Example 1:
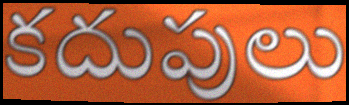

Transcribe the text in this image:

కదుపులు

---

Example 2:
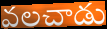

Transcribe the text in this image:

వలచాడు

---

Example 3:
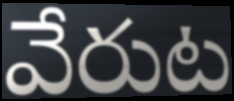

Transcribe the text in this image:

వేరుట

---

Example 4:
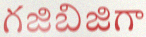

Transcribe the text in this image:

గజిబిజిగా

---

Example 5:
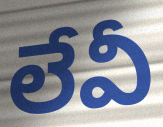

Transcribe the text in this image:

లేవీ